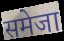
समेजा